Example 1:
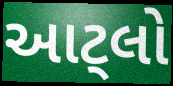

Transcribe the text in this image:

આટ્લો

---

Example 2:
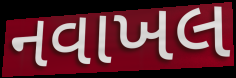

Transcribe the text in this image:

નવાખલ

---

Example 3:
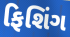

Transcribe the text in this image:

ફિશિંગ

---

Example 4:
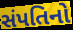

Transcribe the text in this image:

સંપતિનો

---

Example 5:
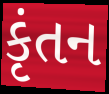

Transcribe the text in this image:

કૃંતન